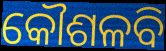
କୌଶଳବି